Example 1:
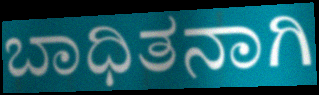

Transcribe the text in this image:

ಬಾಧಿತನಾಗಿ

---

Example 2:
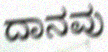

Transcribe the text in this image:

ದಾನವು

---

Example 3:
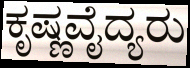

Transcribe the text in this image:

ಕೃಷ್ಣವೈದ್ಯರು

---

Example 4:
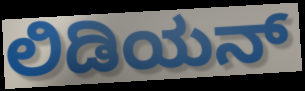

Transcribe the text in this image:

ಲಿಡಿಯನ್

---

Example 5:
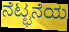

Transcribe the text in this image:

ನೆಟ್ಟನೆಯ